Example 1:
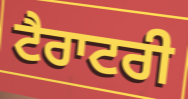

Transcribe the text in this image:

ਟੈਰਾਟਰੀ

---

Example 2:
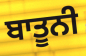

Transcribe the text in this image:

ਬਾਤੂਨੀ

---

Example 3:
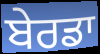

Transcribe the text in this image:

ਬੇਰਡਾ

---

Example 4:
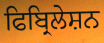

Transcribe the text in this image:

ਫਿਬ੍ਰਿਲੇਸ਼ਨ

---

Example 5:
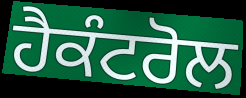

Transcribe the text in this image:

ਹੈਕੰਟਰੋਲ